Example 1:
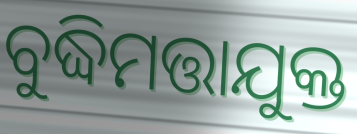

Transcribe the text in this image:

ବୁଦ୍ଧିମତ୍ତାଯୁକ୍ତ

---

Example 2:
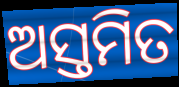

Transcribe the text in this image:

ଅସ୍ତମିତ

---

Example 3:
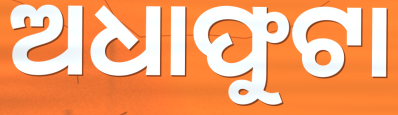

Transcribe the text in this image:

ଅଧାଫୁଟା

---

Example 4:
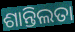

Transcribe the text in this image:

ଶାନ୍ତିଲତା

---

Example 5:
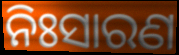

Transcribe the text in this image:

ନିଃସାରଣ